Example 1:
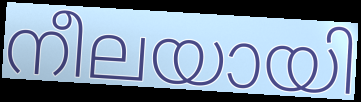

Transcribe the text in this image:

നീലയായി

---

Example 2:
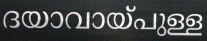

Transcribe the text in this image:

ദയാവായ്പുള്ള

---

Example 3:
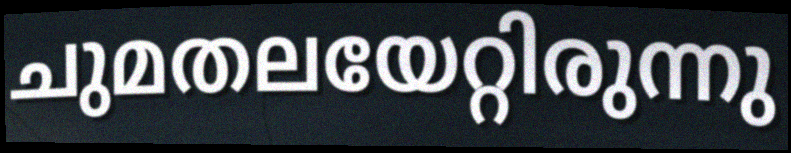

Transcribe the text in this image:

ചുമതലയേറ്റിരുന്നു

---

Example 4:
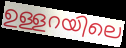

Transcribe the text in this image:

ഉള്ളറയിലെ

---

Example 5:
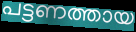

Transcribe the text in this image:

പട്ടണത്തായ